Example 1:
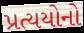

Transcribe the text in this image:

પ્રત્યયોનો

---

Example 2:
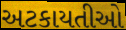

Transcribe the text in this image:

અટકાયતીઓ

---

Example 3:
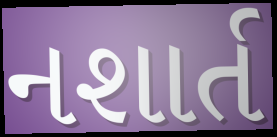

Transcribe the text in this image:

નશાર્ત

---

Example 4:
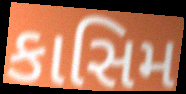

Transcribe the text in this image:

કાસિમ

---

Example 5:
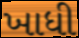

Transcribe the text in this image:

ખાધી